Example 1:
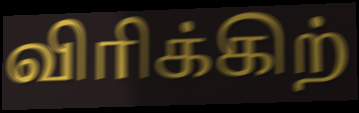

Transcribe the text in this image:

விரிக்கிற்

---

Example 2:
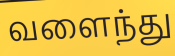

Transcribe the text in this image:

வளைந்து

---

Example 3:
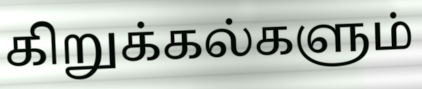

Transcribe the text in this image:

கிறுக்கல்களும்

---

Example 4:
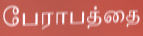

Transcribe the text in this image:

பேராபத்தை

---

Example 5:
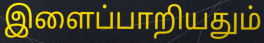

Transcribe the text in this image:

இளைப்பாறியதும்